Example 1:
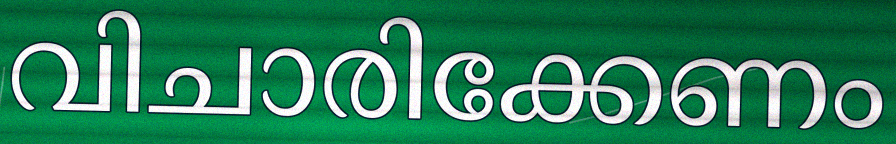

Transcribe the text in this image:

വിചാരിക്കേണം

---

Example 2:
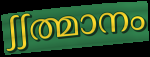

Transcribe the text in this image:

ഽഽത്മാനം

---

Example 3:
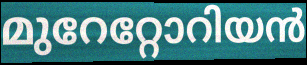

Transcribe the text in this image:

മുറേറ്റോറിയൻ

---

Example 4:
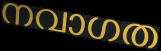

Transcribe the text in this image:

നവാഗത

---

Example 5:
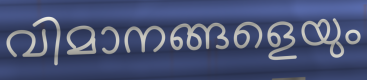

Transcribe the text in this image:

വിമാനങ്ങളെയും